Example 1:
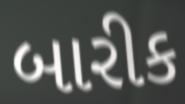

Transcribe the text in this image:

બારીક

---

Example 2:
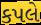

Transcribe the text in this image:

કપલે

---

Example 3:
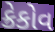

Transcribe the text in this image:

ક્રેકોવ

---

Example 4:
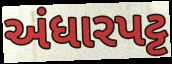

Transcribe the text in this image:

અંધારપટ્ટ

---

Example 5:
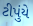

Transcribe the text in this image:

ટીપુંયે